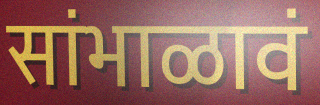
सांभाळावं